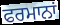
ਫਰਮਾਨਾਂ